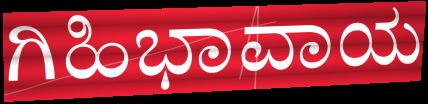
ಗಿಹಿಭಾವಾಯ